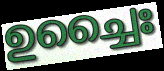
ഉച്ചൈഃ